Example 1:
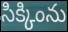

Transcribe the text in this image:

సిక్కింను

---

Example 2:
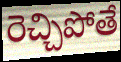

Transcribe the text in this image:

రెచ్చిపోతే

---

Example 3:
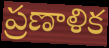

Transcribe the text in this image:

ప్రణాళిక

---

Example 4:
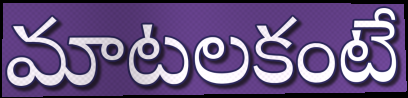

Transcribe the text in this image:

మాటలకంటే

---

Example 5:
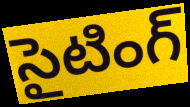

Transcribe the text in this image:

సైటింగ్